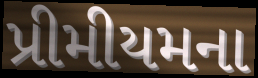
પ્રીમીયમના